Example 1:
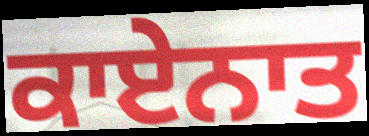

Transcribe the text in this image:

ਕਾਏਨਾਤ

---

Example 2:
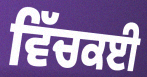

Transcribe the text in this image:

ਵਿੱਚਕਈ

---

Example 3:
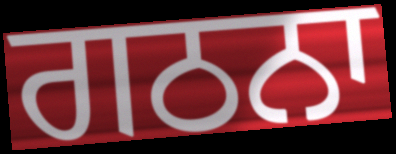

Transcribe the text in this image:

ਗਠਨਾ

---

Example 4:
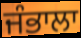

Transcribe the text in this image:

ਜੰਭਾਲਾ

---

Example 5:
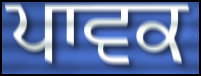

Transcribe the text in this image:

ਪਾਵਕ